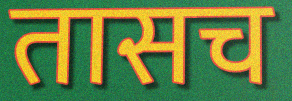
तासच